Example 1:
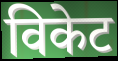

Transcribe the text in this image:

विकेट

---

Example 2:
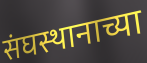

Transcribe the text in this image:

संघस्थानाच्या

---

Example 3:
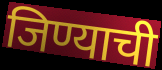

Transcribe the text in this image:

जिण्याची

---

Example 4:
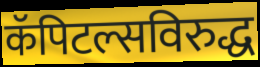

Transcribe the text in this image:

कॅपिटल्सविरुद्ध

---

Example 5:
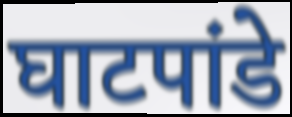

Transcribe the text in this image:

घाटपांडे